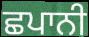
ਛਪਾਨੀ